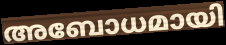
അബോധമായി